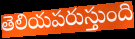
తెలియపరుస్తుంది